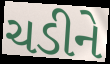
ચડીને